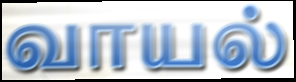
வாயல்